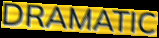
DRAMATIC